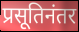
प्रसूतिनंतर